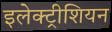
इलेक्‍ट्रीशियन